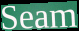
Seam